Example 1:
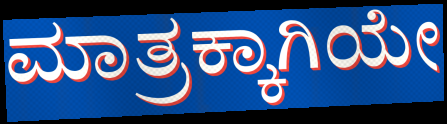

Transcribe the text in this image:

ಮಾತ್ರಕ್ಕಾಗಿಯೇ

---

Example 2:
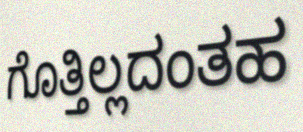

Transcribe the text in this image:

ಗೊತ್ತಿಲ್ಲದಂತಹ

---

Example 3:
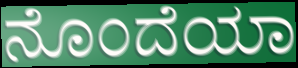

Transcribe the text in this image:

ನೊಂದೆಯಾ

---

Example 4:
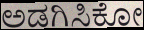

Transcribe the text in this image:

ಅಡಗಿಸಿಕೋ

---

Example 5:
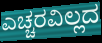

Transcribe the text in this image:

ಎಚ್ಚರವಿಲ್ಲದ